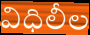
విధిలీల